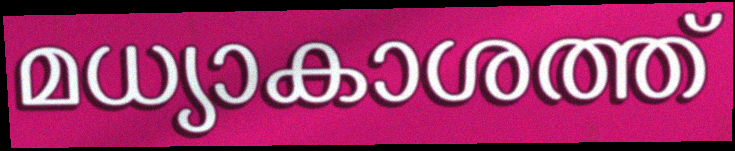
മധ്യാകാശത്ത്